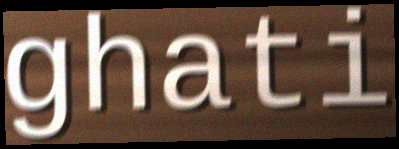
ghati